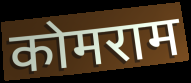
कोमराम